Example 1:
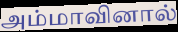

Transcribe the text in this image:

அம்மாவினால்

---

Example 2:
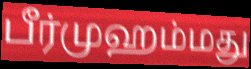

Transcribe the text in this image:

பீர்முஹம்மது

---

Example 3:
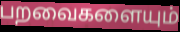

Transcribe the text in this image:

பறவைகளையும்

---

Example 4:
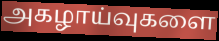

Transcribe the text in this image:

அகழாய்வுகளை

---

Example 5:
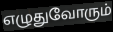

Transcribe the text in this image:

எழுதுவோரும்